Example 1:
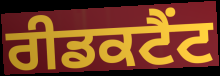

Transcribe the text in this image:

ਰੀਡਕਟੈਂਟ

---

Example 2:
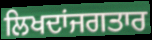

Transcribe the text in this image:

ਲਿਖਦਾਂਜਗਤਾਰ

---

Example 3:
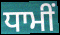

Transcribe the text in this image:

ਧਾਮੀਂ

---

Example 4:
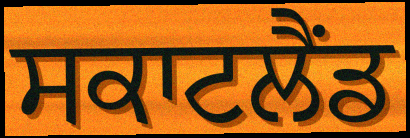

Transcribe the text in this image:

ਸਕਾਟਲੈਂਡ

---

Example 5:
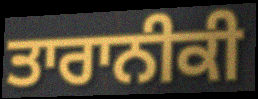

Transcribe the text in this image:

ਤਾਰਾਨੀਕੀ